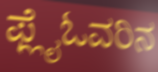
ಫ್ಲೈಓವರಿನ